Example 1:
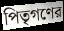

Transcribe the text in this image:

পিতৃগণের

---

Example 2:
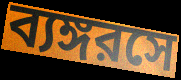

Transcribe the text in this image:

ব্যঙ্গরসে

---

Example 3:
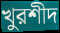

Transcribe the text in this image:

খুরশীদ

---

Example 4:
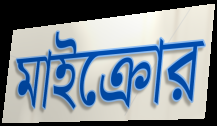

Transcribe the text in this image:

মাইক্রোর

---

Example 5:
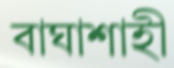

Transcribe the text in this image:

বাঘাশাহী